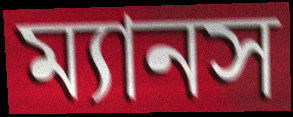
ম্যানস